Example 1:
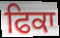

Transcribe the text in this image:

ਫਿਕਾ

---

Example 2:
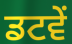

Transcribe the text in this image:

ਡਟਵੇਂ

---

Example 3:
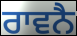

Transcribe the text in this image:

ਰਾਵਨੈ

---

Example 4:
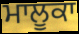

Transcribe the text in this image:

ਮਾਲੂਕਾ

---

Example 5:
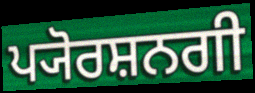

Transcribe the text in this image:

ਪ੍ਯੋਰਸ਼ਨਗੀ